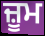
ਜ਼ੂਮ